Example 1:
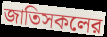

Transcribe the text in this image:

জাতিসকলের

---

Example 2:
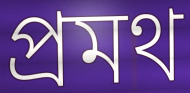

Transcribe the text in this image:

প্রমথ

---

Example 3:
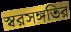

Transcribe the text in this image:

স্বরসঙ্গতির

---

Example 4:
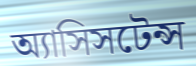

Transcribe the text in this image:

অ্যাসিসটেন্স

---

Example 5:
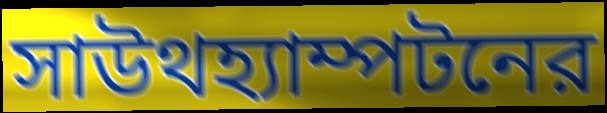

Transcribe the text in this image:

সাউথহ্যাম্পটনের